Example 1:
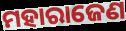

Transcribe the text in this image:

ମହାରାଜେଣ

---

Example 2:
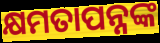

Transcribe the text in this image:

କ୍ଷମତାପନ୍ନଙ୍କ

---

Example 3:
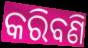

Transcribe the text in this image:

କରିବଣି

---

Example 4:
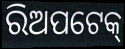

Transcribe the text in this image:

ରିଅପଟେକ୍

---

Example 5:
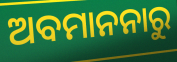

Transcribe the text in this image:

ଅବମାନନାରୁ